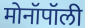
मोनॉपॉली